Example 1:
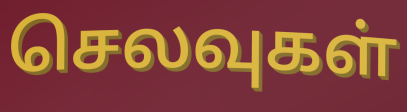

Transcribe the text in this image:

செலவுகள்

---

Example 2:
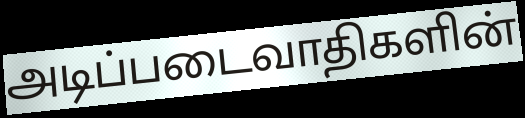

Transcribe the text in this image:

அடிப்படைவாதிகளின்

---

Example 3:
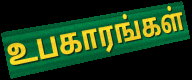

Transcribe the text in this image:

உபகாரங்கள்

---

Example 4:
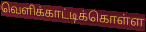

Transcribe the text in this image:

வெளிக்காட்டிக்கொள்ள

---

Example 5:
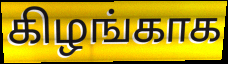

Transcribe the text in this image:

கிழங்காக